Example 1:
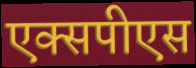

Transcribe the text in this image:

एक्सपीएस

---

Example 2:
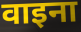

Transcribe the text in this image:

वाइना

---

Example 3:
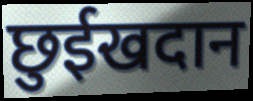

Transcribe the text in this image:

छुईखदान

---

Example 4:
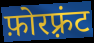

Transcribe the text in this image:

फ़ोरफ़्रंट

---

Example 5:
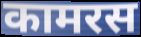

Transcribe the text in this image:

कामरस